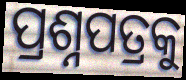
ପ୍ରଶ୍ନପତ୍ରକୁ